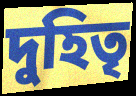
দুহিতৃ